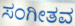
ಸಂಗೀತವ